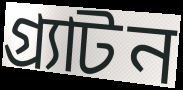
গ্র্যাটন